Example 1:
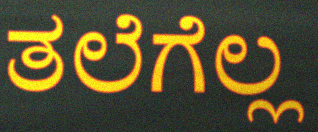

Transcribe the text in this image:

ತಲೆಗೆಲ್ಲ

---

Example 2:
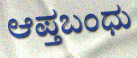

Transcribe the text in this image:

ಆಪ್ತಬಂಧು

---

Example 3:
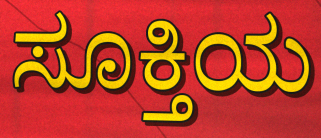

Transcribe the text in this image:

ಸೂಕ್ತಿಯ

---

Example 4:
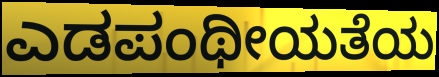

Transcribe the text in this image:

ಎಡಪಂಥೀಯತೆಯ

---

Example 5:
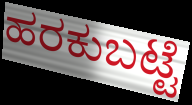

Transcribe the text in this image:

ಹರಕುಬಟ್ಟೆ